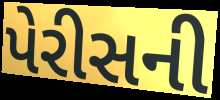
પેરીસની